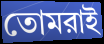
তোমরাই